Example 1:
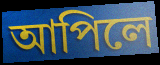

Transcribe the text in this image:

আপিলে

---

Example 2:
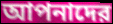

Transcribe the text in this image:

আপনাদের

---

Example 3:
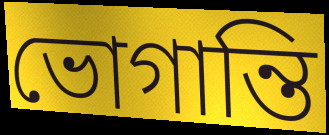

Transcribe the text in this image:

ভোগান্তি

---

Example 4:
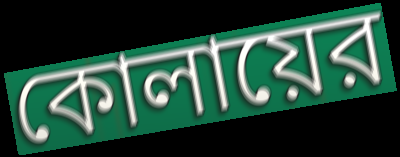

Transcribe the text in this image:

কোলায়ের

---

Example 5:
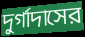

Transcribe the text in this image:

দুর্গাদাসের